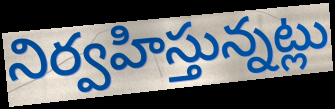
నిర్వహిస్తున్నట్లు